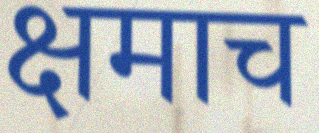
क्षमाच